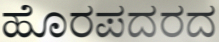
ಹೊರಪದರದ